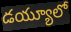
డయ్యూలో